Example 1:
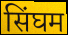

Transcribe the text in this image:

सिंघम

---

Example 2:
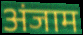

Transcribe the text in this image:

अंजाम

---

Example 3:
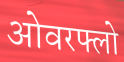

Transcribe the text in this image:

ओवरफ्लो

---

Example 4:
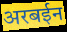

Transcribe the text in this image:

अरबईन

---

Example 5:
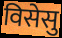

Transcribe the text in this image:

विसेसु